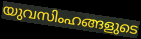
യുവസിംഹങ്ങളുടെ